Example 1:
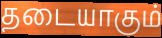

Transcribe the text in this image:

தடையாகும்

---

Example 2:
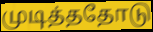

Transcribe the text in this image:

முடித்ததோடு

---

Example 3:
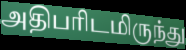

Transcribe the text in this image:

அதிபரிடமிருந்து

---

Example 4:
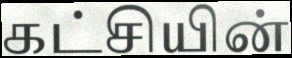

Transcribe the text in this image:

கட்சியின்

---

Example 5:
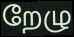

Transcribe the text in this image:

றேழு